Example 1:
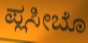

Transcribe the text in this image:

ಪ್ಲಸೀಬೊ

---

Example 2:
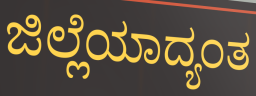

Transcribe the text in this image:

ಜಿಲ್ಲೆಯಾದ್ಯಂತ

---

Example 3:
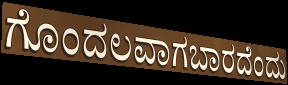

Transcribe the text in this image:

ಗೊಂದಲವಾಗಬಾರದೆಂದು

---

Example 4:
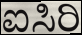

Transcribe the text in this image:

ಐಸಿರಿ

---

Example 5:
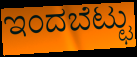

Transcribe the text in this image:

ಇಂದಬೆಟ್ಟು